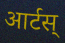
आर्टस्